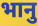
भानु